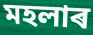
মহলাৰ